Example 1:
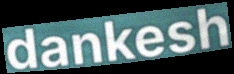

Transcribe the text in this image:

dankesh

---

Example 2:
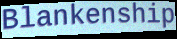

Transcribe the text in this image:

Blankenship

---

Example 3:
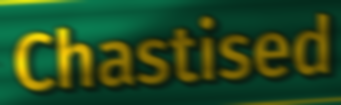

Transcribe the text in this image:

Chastised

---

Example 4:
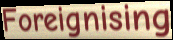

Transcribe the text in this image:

Foreignising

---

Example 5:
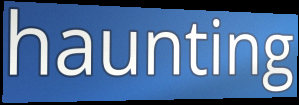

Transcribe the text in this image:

haunting